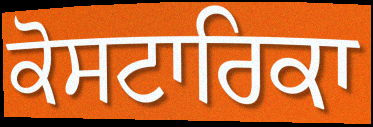
ਕੋਸਟਾਰਿਕਾ